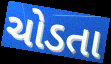
ચોડતા